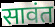
सावंत